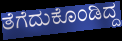
ತೆಗೆದುಕೊಂಡಿದ್ದ